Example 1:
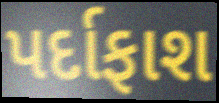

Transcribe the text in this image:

પર્દાફાશ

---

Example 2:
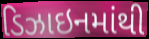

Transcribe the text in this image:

ડિઝાઇનમાંથી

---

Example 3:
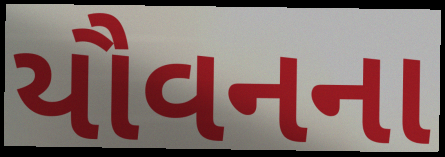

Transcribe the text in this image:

યૌવનના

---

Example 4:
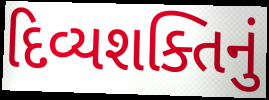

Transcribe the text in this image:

દિવ્યશક્તિનું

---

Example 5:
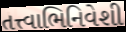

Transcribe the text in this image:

તત્ત્વાભિનિવેશી